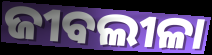
ଜୀବଲୀଳା